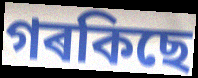
গৰকিছে